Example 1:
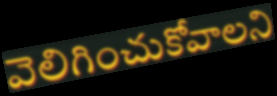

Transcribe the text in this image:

వెలిగించుకోవాలని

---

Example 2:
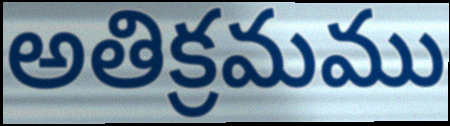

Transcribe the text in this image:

అతిక్రమము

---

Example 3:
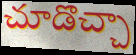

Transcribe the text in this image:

చూడొచ్చా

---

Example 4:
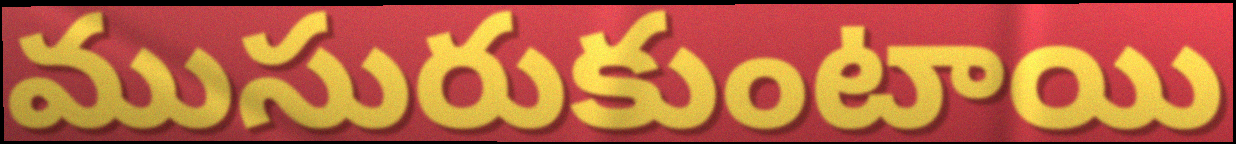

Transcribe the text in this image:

ముసురుకుంటాయి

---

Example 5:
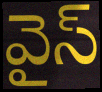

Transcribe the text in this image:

వైస్